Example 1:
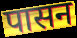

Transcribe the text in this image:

पासन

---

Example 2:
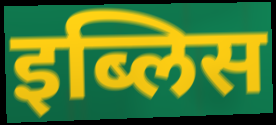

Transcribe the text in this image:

इब्लिस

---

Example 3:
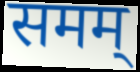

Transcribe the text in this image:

समम्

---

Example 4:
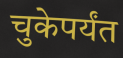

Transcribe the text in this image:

चुकेपर्यंत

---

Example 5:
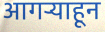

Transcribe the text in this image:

आगऱ्याहून